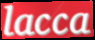
lacca